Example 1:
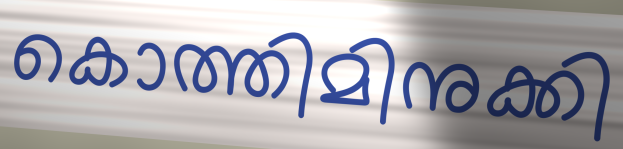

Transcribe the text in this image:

കൊത്തിമിനുക്കി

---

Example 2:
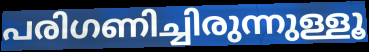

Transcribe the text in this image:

പരിഗണിച്ചിരുന്നുള്ളൂ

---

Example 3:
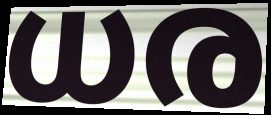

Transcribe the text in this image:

ധര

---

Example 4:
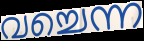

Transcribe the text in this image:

വച്ചെന്ന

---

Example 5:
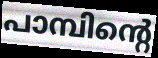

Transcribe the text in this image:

പാമ്പിന്റെ